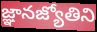
జ్ఞానజ్యోతిని